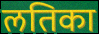
लतिका